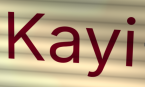
Kayi